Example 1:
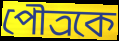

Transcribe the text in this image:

পৌত্রকে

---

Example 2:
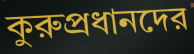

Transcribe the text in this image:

কুরুপ্রধানদের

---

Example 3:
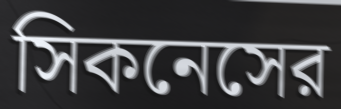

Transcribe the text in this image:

সিকনেসের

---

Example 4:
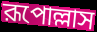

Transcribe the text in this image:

রূপোল্লাস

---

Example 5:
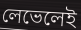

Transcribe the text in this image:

লেভেলেই